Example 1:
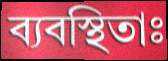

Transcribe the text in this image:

ব্যবস্থিতাঃ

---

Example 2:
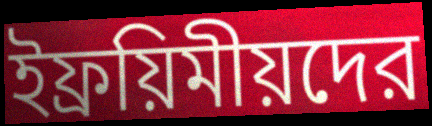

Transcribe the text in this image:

ইফ্রয়িমীয়দের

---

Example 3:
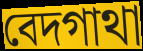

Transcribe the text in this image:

বেদগাথা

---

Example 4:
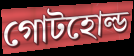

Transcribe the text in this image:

গোটহোল্ড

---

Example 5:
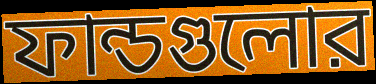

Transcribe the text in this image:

ফান্ডগুলোর